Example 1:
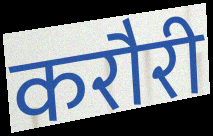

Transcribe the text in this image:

करौरी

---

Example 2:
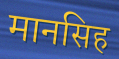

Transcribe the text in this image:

मानसिह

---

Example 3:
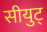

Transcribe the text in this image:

सीयुट्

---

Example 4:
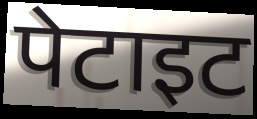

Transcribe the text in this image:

पेटाइट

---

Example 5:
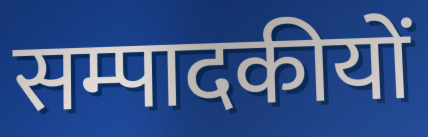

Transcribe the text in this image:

सम्पादकीयों